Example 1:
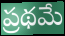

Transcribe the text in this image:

ప్రథమే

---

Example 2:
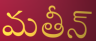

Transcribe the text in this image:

మతీన్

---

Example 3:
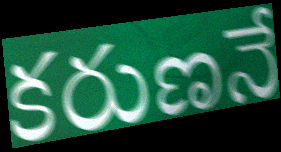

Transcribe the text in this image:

కరుణనే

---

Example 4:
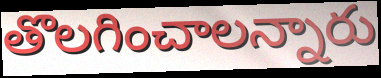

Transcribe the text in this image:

తొలగించాలన్నారు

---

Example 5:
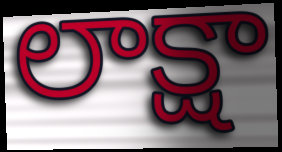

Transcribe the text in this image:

లాక్షా